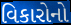
વિકારોનો